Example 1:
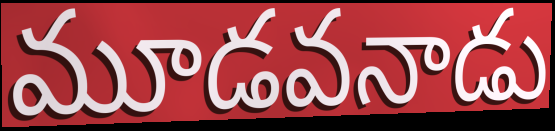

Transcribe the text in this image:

మూడవనాడు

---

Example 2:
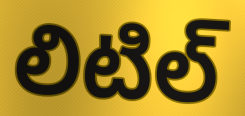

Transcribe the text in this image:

లిటిల్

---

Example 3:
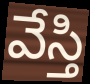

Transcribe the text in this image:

వేస్తి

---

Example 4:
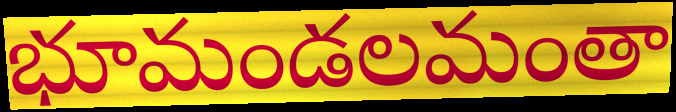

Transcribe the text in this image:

భూమండలమంతా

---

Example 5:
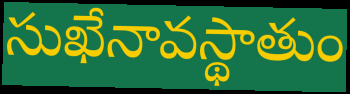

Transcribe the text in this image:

సుఖేనావస్థాతుం